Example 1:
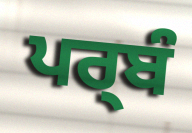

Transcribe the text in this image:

ਪਰ੍ਬੰ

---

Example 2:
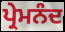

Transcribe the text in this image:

ਪ੍ਰੇਮਨੰਦ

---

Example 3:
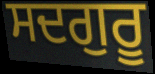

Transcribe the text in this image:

ਸਦਗੁਰੂ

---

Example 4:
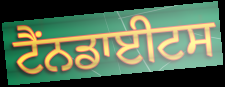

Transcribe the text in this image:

ਟੈਂਨਡਾਈਟਸ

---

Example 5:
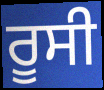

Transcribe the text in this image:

ਰੂਸੀ